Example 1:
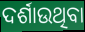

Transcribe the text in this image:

ଦର୍ଶାଉଥିବା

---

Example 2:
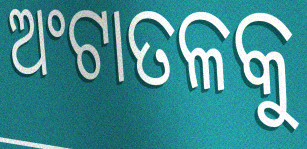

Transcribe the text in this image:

ଅଂଟାତଳକୁ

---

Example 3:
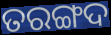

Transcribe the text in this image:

ତରଙ୍ଗଦ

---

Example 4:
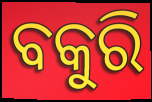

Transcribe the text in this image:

ବକୁରି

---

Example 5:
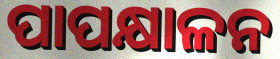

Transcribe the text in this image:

ପାପକ୍ଷାଳନ